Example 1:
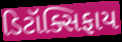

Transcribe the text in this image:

ડિટૉક્સિફાય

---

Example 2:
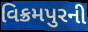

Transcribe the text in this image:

વિક્રમપુરની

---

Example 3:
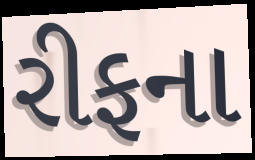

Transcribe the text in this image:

રીફના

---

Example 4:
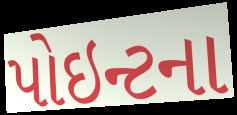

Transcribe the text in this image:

પોઇન્ટના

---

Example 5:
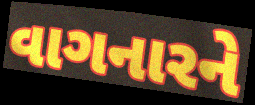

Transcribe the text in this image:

વાગનારને